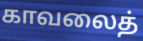
காவலைத்